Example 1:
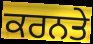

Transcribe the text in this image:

ਕਰਨਤੇ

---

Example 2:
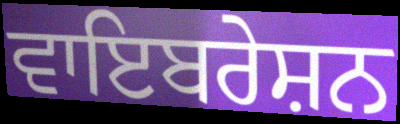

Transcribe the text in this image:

ਵਾਇਬਰੇਸ਼ਨ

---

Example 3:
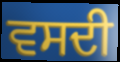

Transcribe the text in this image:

ਵਸਦੀ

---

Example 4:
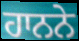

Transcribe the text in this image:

ਹਾਨਨੇ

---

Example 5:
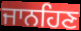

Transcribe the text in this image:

ਜਾਨਹਿਣ